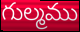
గుల్మము